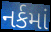
નર્કમાં